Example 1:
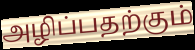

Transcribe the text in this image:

அழிப்பதற்கும்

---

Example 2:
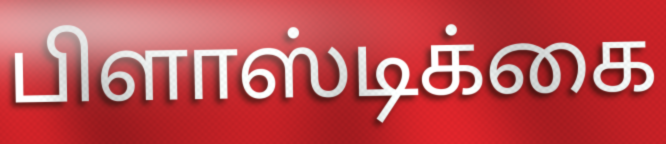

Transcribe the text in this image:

பிளாஸ்டிக்கை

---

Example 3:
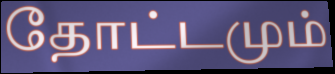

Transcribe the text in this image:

தோட்டமும்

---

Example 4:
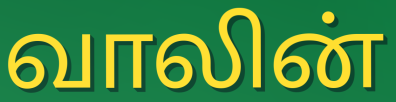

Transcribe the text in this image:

வாலின்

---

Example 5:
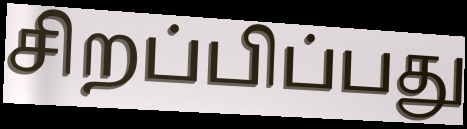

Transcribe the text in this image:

சிறப்பிப்பது